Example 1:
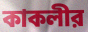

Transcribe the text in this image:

কাকলীর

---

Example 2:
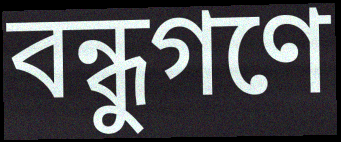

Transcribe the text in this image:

বন্ধুগণে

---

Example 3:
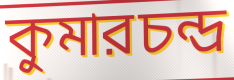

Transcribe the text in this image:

কুমারচন্দ্র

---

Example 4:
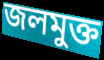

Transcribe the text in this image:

জলমুক্ত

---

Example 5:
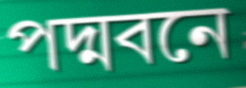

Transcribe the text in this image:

পদ্মবনে